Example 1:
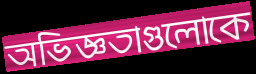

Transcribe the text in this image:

অভিজ্ঞতাগুলোকে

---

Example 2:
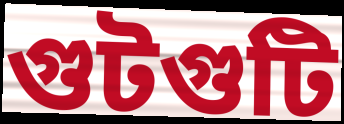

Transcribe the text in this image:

গুটগুটি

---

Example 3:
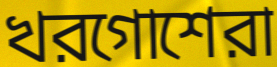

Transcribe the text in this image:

খরগোশেরা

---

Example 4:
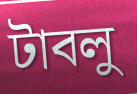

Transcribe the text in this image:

টাবলু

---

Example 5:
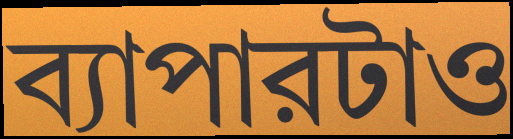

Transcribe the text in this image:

ব্যাপারটাও